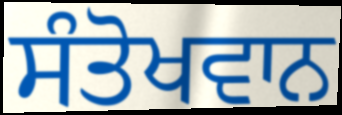
ਸੰਤੋਖਵਾਨ